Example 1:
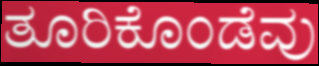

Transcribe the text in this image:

ತೂರಿಕೊಂಡೆವು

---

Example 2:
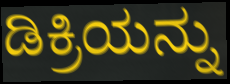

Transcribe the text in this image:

ಡಿಕ್ರಿಯನ್ನು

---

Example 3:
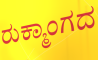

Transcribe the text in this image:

ರುಕ್ಮಾಂಗದ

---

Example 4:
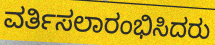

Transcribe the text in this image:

ವರ್ತಿಸಲಾರಂಭಿಸಿದರು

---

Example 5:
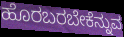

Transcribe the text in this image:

ಹೊರಬರಬೇಕೆನ್ನುವ